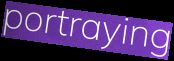
portraying